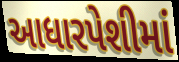
આધારપેશીમાં